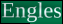
Engles